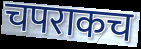
चपराकच